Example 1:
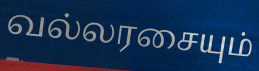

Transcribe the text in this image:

வல்லரசையும்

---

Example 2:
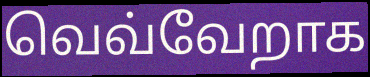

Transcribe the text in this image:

வெவ்வேறாக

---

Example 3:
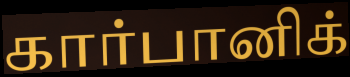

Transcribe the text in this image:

கார்பானிக்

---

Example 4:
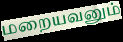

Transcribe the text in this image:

மறையவனும்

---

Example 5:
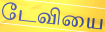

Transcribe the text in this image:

டேவியை